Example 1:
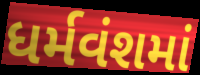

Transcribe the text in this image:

ધર્મવંશમાં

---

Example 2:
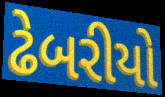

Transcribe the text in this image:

ઢેબરીયો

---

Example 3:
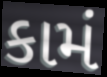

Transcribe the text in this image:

કામં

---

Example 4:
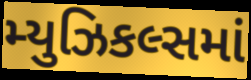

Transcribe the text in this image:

મ્યુઝિકલ્સમાં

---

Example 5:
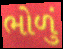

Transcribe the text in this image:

ભોળું